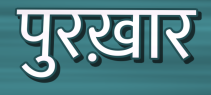
पुरख़ार